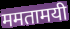
ममतामयी